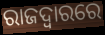
ରାଜଦ୍ୱାରରେ